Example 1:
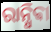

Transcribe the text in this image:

ରାନ୍ଧିଵା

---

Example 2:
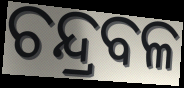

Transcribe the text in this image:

ଚନ୍ଦ୍ରବଳ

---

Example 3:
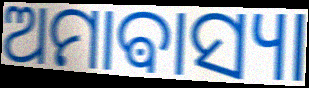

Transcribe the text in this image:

ଅମାଵାସ୍ୟା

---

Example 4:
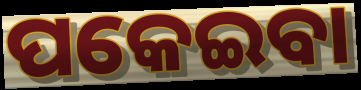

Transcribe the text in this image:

ପକେଇବା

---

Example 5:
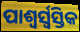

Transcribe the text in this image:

ପାଶ୍ୱର୍ସ୍ୱସ୍ତିକ